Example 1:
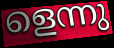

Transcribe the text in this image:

ളെന്നു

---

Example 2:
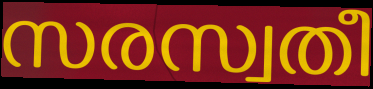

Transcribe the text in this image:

സരസ്വതീ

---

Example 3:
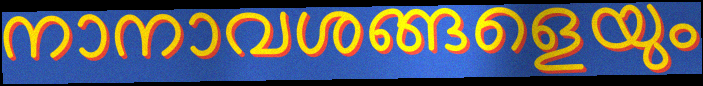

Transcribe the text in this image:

നാനാവശങ്ങളെയും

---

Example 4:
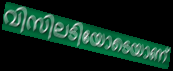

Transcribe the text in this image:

വിസിലടിയോടെയാണ്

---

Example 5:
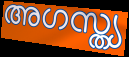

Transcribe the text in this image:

അഗസ്ത്യ